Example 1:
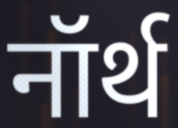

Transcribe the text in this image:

नॉर्थ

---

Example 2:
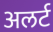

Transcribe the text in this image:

अलर्ट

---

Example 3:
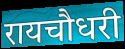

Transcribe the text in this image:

रायचौधरी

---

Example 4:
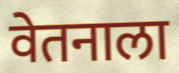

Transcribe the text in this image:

वेतनाला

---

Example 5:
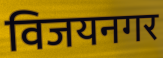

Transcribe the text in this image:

विजयनगर